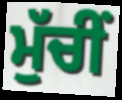
ਮੁੱਚੀਂ